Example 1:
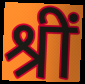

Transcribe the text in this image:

श्रीं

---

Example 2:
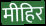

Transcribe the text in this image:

मीहिर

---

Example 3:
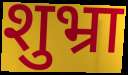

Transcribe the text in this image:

शुभ्रा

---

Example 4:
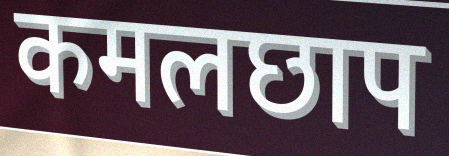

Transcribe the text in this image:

कमलछाप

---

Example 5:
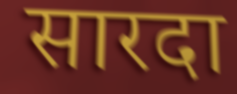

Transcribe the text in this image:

सारदा